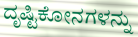
ದೃಷ್ಟಿಕೋನಗಳನ್ನು